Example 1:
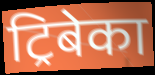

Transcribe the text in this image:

ट्रिबेका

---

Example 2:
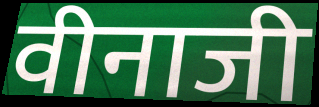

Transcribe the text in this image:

वीनाजी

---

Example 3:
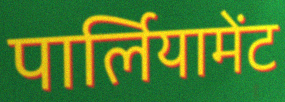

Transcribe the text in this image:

पार्लियामेंट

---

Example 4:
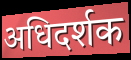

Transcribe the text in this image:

अधिदर्शक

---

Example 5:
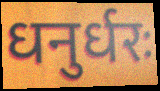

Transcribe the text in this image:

धनुर्धरः